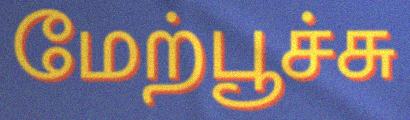
மேற்பூச்சு